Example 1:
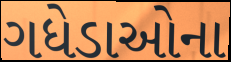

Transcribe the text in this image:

ગધેડાઓના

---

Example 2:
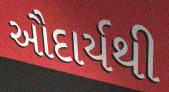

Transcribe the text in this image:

ઔદાર્યથી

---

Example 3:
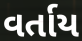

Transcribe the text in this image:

વર્તાય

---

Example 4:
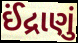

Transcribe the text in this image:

ઈંદ્રાણું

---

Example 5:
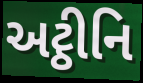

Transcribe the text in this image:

અટ્ઠીનિ